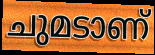
ചുമടാണ്